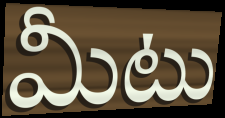
మీటు